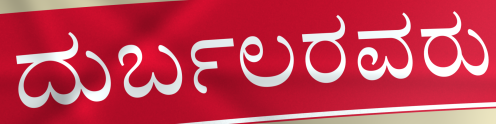
ದುರ್ಬಲರವರು